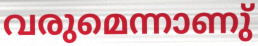
വരുമെന്നാണു്